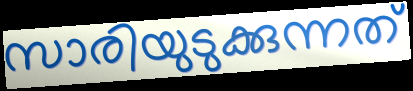
സാരിയുടുക്കുന്നത്